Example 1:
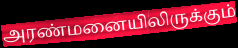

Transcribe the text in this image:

அரண்மனையிலிருக்கும்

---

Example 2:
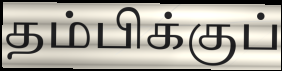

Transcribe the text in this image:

தம்பிக்குப்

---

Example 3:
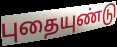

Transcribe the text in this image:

புதையுண்டு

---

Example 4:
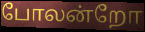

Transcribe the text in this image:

போலன்றோ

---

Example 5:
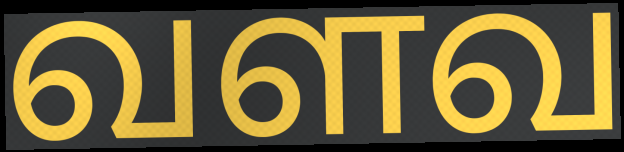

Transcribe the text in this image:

வளவ